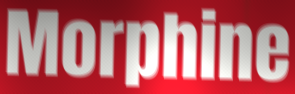
Morphine